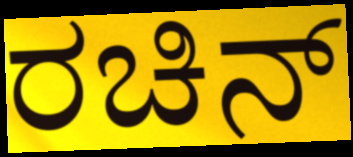
ರಚಿನ್